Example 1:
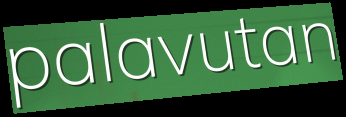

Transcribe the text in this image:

palavutan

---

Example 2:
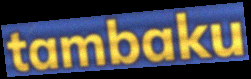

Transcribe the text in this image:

tambaku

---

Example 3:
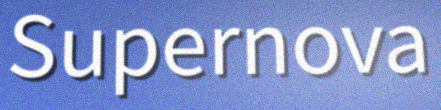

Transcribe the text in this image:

Supernova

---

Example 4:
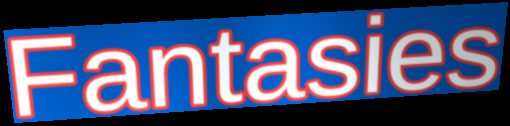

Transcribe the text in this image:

Fantasies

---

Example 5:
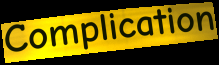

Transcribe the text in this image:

Complication